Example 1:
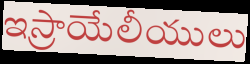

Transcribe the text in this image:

ఇస్రాయేలీయులు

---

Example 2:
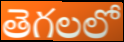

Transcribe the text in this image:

తెగలలో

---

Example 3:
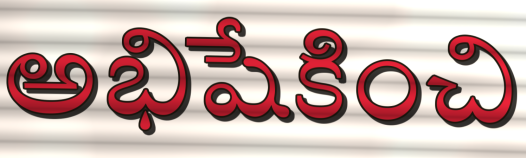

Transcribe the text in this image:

అభిషేకించి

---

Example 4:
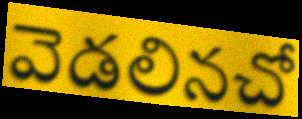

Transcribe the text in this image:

వెడలినచో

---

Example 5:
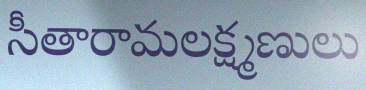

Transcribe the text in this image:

సీతారామలక్ష్మణులు